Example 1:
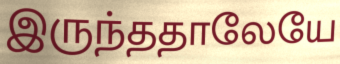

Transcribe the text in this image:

இருந்ததாலேயே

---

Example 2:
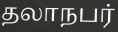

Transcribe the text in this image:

தலாநபர்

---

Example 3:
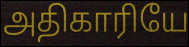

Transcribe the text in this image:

அதிகாரியே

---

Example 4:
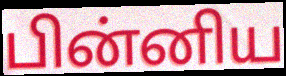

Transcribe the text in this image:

பின்னிய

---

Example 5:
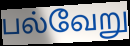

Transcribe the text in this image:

பல்வேறு